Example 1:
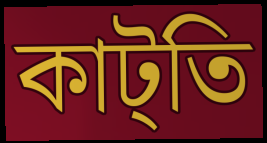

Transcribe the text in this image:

কাট্তি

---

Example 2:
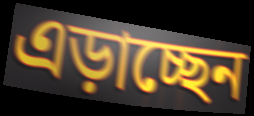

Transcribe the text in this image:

এড়াচ্ছেন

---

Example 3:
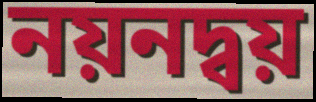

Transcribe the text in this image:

নয়নদ্বয়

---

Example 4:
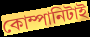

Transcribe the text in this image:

কোম্পানিটাই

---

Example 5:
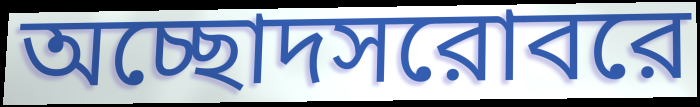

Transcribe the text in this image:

অচ্ছোদসরোবরে